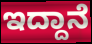
ಇದ್ದಾನೆ